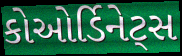
કોઓર્ડિનેટ્સ